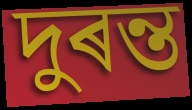
দুৰন্ত